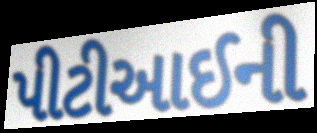
પીટીઆઈની